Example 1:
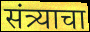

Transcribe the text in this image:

संत्र्याचा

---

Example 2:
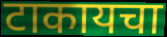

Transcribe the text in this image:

टाकायचा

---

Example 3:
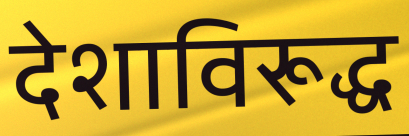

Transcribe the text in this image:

देशाविरूद्ध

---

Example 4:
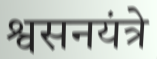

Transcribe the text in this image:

श्वसनयंत्रे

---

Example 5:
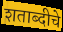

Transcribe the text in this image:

शताब्दीचे